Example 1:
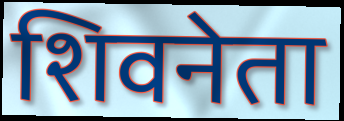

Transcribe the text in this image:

शिवनेता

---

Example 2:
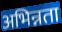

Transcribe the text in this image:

अभिन्नता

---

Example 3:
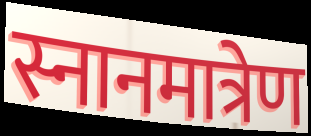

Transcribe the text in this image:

स्नानमात्रेण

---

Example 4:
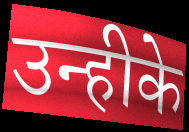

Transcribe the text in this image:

उन्हीके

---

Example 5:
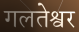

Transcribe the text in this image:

गलतेश्वर